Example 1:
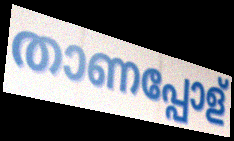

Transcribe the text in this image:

താണപ്പോള്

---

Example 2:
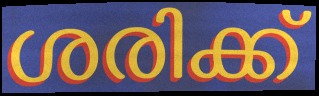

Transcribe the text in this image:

ശരിക്ക്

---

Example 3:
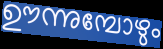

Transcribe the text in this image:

ഊന്നുമ്പോഴും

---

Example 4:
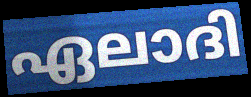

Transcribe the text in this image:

ഏലാദി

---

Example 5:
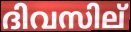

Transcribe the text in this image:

ദിവസില്